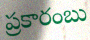
ప్రకారంబు